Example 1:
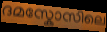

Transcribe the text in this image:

ദമസ്കോസിലെ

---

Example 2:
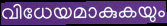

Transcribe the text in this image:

വിധേയമാകുകയും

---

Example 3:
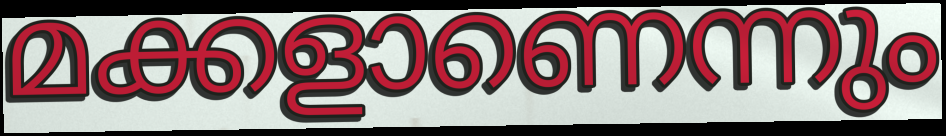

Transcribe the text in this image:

മക്കളാണെന്നും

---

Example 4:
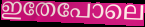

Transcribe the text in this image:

ഇതേപോലെ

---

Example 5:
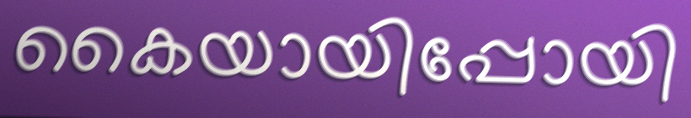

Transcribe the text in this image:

കൈയായിപ്പോയി